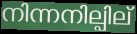
നിന്നനില്പില്